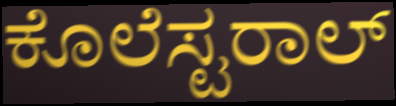
ಕೊಲೆಸ್ಟರಾಲ್